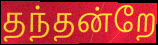
தந்தன்றே